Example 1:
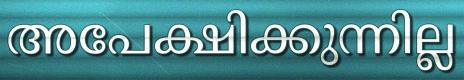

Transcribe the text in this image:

അപേക്ഷിക്കുന്നില്ല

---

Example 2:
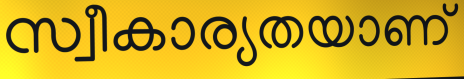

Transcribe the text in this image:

സ്വീകാര്യതയാണ്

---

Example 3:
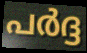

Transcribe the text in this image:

പർദ്ദ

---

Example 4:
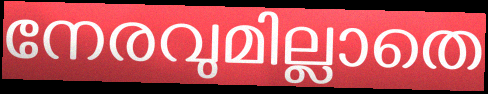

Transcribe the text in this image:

നേരവുമില്ലാതെ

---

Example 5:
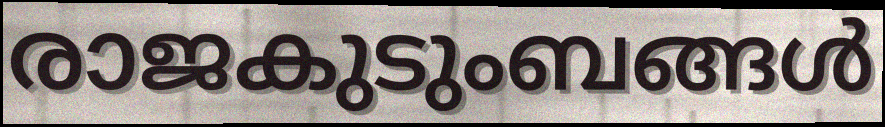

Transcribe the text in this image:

രാജകുടുംബങ്ങൾ